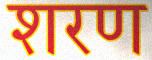
शरण